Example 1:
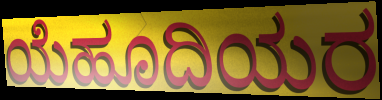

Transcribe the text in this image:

ಯೆಹೂದಿಯರ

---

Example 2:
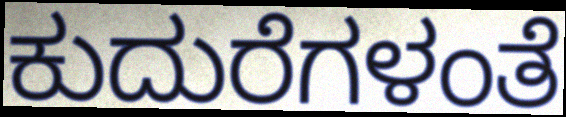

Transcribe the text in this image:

ಕುದುರೆಗಳಂತೆ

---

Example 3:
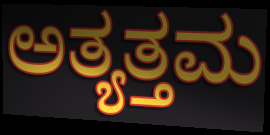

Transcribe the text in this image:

ಅತ್ಯತ್ತಮ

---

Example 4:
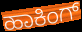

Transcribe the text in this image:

ಹಾಕಿಂಗ್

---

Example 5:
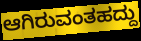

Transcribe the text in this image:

ಆಗಿರುವಂತಹದ್ದು